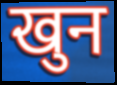
खुन